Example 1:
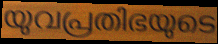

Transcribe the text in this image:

യുവപ്രതിഭയുടെ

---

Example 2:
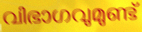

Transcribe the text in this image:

വിഭാഗവുമുണ്ട്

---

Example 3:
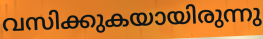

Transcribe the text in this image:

വസിക്കുകയായിരുന്നു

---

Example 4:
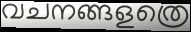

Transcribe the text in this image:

വചനങ്ങളത്രെ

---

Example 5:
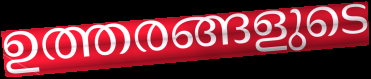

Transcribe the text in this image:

ഉത്തരങ്ങളുടെ